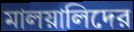
মালয়ালিদের